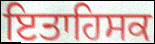
ਇਤਾਹਿਸਕ